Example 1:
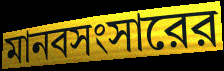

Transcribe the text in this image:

মানবসংসারের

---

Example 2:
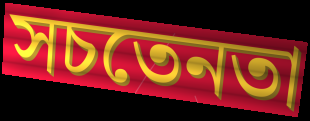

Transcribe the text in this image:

সচতেনতা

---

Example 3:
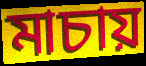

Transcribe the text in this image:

মাচায়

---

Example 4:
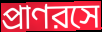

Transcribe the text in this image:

প্রাণরসে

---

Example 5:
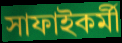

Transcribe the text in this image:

সাফাইকর্মী